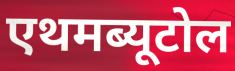
एथमब्यूटोल